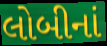
લોબીનાં